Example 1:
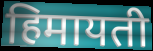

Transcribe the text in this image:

हिमायती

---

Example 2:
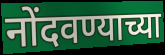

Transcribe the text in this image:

नोंदवण्याच्या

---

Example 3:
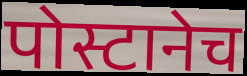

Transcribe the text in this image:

पोस्टानेच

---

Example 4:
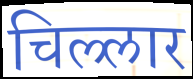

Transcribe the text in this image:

चिल्लार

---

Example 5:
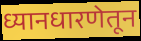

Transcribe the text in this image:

ध्यानधारणेतून